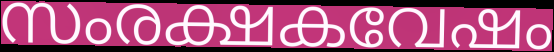
സംരക്ഷകവേഷം